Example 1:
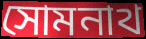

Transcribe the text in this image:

সোমনাথ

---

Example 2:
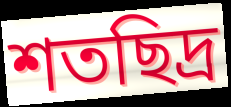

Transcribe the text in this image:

শতছিদ্র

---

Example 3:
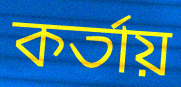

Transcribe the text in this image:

কর্তায়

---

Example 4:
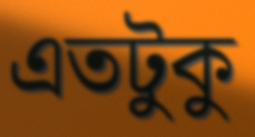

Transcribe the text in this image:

এতটুকু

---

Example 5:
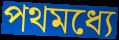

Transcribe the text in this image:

পথমধ্যে